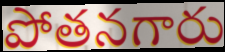
పోతనగారు